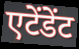
एटेंडेंट